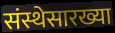
संस्थेसारख्या